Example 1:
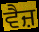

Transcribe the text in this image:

ਵੈਜ਼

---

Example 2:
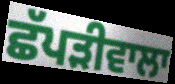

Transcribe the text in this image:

ਛੱਪੜੀਵਾਲਾ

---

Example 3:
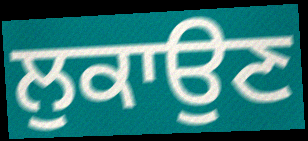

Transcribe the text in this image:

ਲੁਕਾਉਣ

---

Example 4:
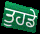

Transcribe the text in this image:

ਤੁਹਡੇ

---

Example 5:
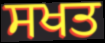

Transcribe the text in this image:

ਸਖਤ